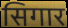
सिगार